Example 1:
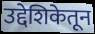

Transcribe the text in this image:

उद्देशिकेतून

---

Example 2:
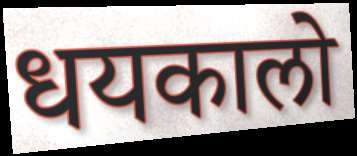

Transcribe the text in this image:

धयकालो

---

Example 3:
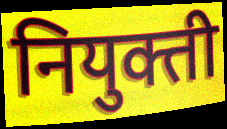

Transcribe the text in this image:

नियुक्ती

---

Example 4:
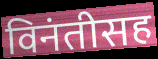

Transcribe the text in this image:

विनंतीसह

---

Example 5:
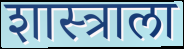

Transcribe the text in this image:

शास्त्राला